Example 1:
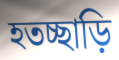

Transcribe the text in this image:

হতচ্ছাড়ি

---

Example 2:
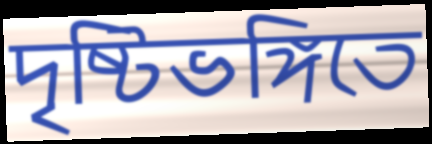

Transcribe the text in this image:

দৃষ্টিভঙ্গিতে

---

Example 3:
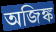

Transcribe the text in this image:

অজিঙ্ক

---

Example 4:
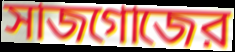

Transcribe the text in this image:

সাজগোজের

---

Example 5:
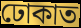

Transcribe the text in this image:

ঢোকাত